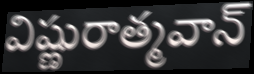
విష్ణురాత్మవాన్